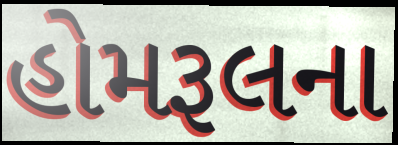
હોમરૂલના